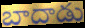
బాదాడు